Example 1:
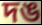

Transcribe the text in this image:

দঙ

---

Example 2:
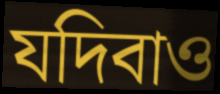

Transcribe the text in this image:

যদিবাও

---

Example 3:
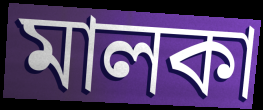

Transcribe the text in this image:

মালকা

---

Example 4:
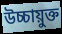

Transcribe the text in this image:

উচ্চায়ুক্ত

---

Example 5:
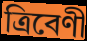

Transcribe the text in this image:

ত্ৰিবেণী